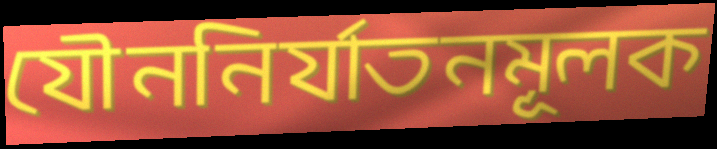
যৌননির্যাতনমূলক